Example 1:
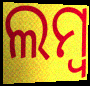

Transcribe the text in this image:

ଲମ୍ବ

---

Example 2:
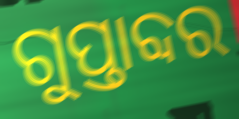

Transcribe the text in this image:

ଗୁପ୍ତାବ୍ଦର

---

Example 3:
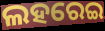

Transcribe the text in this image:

ଲହରେଇ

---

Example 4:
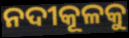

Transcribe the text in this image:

ନଦୀକୂଳକୁ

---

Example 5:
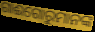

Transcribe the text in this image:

ଗାଈଗୋରୁମାନଙ୍କ